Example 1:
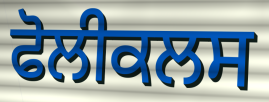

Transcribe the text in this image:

ਫੋਲੀਕਲਸ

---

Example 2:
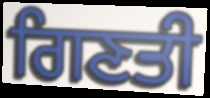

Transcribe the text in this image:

ਗਿਣਤੀ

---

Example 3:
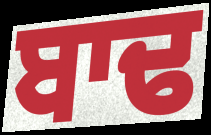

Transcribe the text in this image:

ਬਾਢ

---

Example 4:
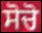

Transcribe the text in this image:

ਸੋਚੋ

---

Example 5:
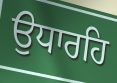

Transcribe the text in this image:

ਉਧਾਰਹਿ